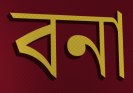
বনা